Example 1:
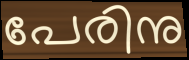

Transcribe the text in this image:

പേരിനു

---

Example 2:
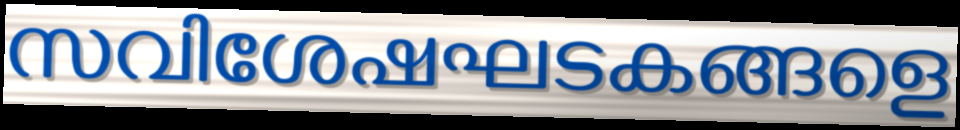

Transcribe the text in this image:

സവിശേഷഘടകങ്ങളെ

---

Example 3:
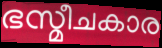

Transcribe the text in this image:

ഭസ്മീചകാര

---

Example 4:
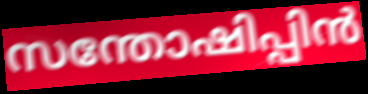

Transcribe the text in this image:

സന്തോഷിപ്പിൻ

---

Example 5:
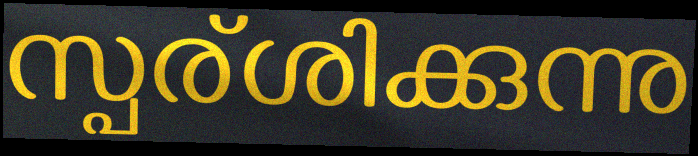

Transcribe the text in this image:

സ്പര്ശിക്കുന്നു